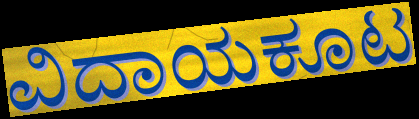
ವಿದಾಯಕೂಟ